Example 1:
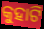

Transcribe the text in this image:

କୁହାଟି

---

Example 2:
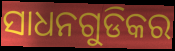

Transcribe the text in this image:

ସାଧନଗୁଡିକର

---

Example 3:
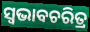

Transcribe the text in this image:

ସ୍ବଭାବଚରିତ୍ର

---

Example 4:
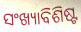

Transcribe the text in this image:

ସଂଖ୍ୟାବିଶିଷ୍ଟ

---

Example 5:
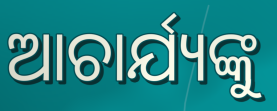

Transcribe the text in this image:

ଆଚାର୍ଯ୍ୟଙ୍କୁ